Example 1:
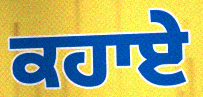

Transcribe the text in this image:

ਕਹਾਏ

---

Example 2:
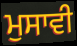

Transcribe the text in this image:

ਮੁਸਾਵੀ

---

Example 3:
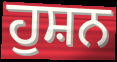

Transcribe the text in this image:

ਹੁਸ਼ਨ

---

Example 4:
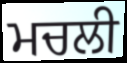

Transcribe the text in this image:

ਮਚਲੀ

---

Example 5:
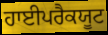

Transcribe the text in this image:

ਹਾਈਪਰੈਕਯੂਟ